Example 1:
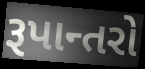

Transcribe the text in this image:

રૂપાન્તરો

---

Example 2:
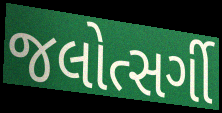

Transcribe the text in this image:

જલોત્સર્ગી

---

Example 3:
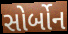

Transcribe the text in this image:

સોર્બોન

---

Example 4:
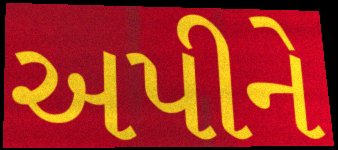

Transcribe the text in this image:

અપીને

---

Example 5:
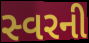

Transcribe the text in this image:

સ્વરની